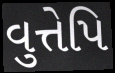
વુત્તેપિ